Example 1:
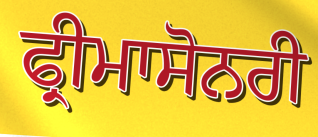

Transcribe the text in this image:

ਫ੍ਰੀਮਾਸੋਨਰੀ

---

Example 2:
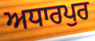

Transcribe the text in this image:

ਅਧਾਰਪੁਰ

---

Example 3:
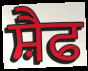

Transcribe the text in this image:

ਸ਼ੈਫ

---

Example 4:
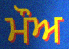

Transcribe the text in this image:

ਮੌਅ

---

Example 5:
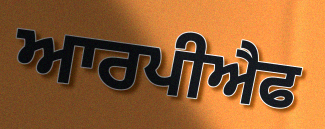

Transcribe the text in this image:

ਆਰਪੀਐਫ